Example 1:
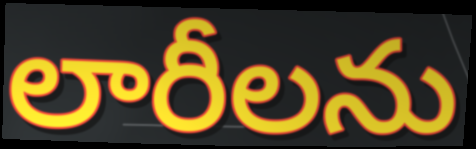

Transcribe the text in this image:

లారీలను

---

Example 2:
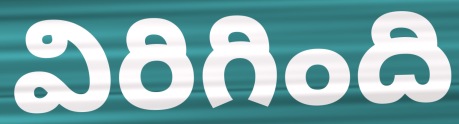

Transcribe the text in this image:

విరిగింది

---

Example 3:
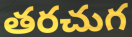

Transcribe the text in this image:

తరచుగ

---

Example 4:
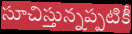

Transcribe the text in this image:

సూచిస్తున్నప్పటికీ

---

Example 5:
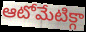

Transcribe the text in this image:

ఆటోమేటిక్గా